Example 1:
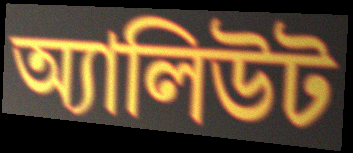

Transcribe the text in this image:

অ্যালিউট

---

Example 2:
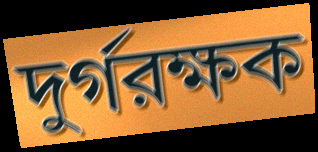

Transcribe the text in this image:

দুর্গরক্ষক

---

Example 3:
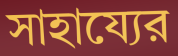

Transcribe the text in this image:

সাহায্যের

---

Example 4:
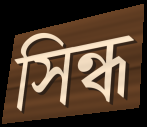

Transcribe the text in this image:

সিন্ধ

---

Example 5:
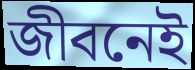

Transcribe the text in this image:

জীবনেই